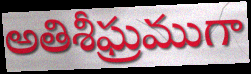
అతిశీఘ్రముగా